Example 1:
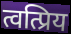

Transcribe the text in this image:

त्वत्प्रिय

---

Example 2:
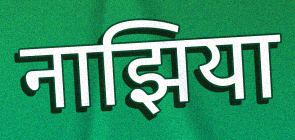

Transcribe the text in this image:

नाझिया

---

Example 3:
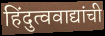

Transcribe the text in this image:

हिंदुत्ववाद्यांची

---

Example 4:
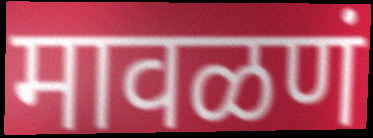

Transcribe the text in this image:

मावळणं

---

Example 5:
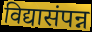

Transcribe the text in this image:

विद्यासंपन्न